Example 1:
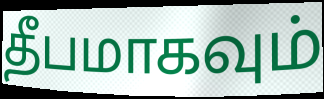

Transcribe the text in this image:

தீபமாகவும்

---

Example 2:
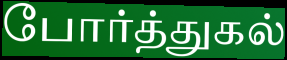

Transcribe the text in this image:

போர்த்துகல்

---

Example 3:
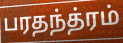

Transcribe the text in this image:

பரதந்த்ரம்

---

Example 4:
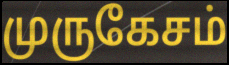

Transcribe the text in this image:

முருகேசம்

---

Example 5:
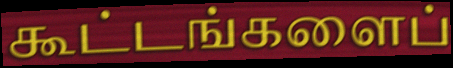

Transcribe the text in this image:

கூட்டங்களைப்